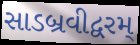
સાડબ્રવીદ્વરમ્